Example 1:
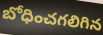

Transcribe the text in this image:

బోధించగలిగిన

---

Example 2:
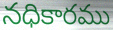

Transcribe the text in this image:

నధికారము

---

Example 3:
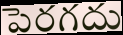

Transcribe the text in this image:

పెరగదు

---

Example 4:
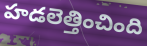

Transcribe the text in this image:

హడలెత్తించింది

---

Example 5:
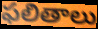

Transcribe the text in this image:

ఫలితాలు